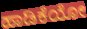
ಹಾಡಿಕೆಯೋ